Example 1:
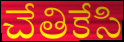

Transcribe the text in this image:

చేతికేసి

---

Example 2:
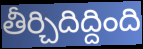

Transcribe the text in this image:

తీర్చిదిద్దింది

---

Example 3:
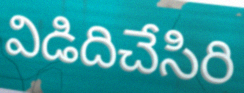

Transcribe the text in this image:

విడిదిచేసిరి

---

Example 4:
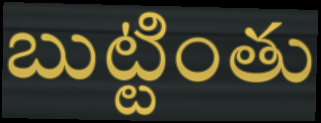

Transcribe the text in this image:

బుట్టింతు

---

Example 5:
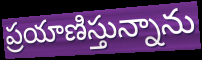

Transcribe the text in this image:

ప్రయాణిస్తున్నాను